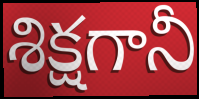
శిక్షగానీ